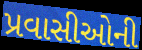
પ્રવાસીઓની